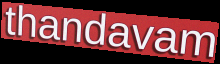
thandavam